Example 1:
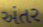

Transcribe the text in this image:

અંતર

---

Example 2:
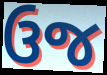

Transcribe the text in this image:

ઉજ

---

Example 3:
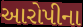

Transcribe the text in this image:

આરોપીના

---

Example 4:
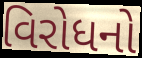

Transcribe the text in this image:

વિરોધનો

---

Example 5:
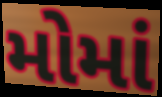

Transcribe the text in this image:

મોમાં